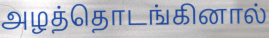
அழத்தொடங்கினால்